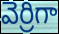
వెర్రిగా